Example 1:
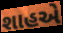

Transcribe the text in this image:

શાહએ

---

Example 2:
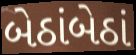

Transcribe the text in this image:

બેઠાંબેઠાં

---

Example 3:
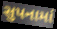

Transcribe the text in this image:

સુપનામાં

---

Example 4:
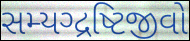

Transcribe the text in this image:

સમ્યગ્દ્રષ્ટિજીવો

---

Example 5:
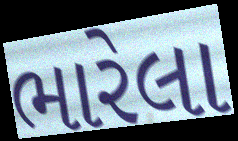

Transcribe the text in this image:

ભારેલા